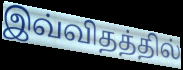
இவ்விதத்தில்